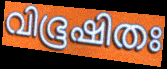
വിഭൂഷിതഃ